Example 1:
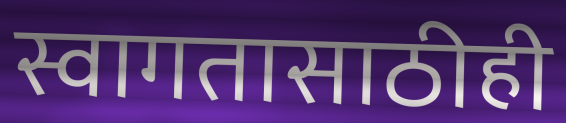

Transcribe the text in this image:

स्वागतासाठीही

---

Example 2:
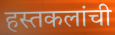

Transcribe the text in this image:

हस्तकलांची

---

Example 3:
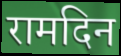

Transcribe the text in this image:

रामदिन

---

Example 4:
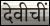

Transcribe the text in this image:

देवीचीं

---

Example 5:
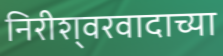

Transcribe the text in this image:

निरीश्वरवादाच्या